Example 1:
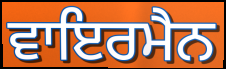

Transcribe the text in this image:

ਵਾਇਰਮੈਨ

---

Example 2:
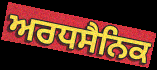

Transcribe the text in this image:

ਅਰਧਸੈਨਿਕ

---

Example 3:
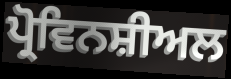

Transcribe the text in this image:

ਪ੍ਰੋਵਿਨਸ਼ੀਅਲ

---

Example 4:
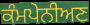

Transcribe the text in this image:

ਕੰਮਪੇਨੀਅਣ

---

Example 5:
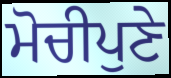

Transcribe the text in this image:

ਮੋਚੀਪੁਣੇ